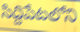
సిద్దిపేటలోని